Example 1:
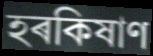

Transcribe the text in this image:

হৰকিষাণ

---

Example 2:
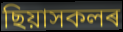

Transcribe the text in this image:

ছিয়াসকলৰ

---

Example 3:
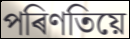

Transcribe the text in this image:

পৰিণতিয়ে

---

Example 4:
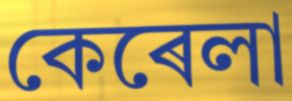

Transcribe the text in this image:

কেৰেলা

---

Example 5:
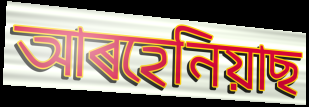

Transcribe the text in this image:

আৰহেনিয়াছ